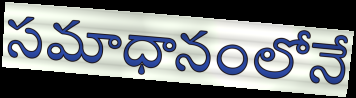
సమాధానంలోనే